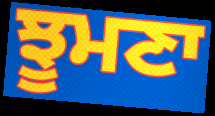
ਝੂਮਣਾ